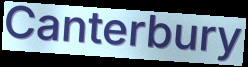
Canterbury